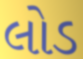
લોડ